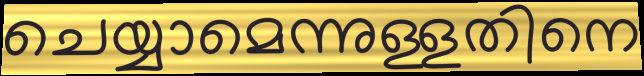
ചെയ്യാമെന്നുള്ളതിനെ